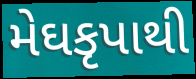
મેઘકૃપાથી